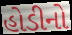
હોડીનો